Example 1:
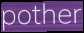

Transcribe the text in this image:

pother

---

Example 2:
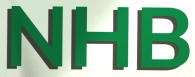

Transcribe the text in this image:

NHB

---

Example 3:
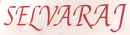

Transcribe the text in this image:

SELVARAJ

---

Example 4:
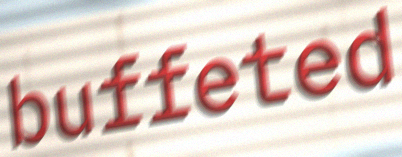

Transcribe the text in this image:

buffeted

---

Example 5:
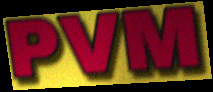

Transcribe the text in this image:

PVM